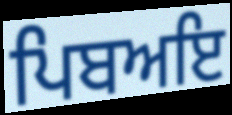
ਪਿਬਅਇ